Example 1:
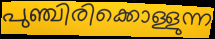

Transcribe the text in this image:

പുഞ്ചിരിക്കൊള്ളുന്ന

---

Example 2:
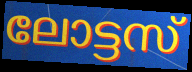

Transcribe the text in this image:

ലോട്ടസ്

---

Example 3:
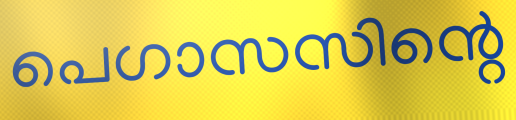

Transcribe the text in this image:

പെഗാസസിന്റെ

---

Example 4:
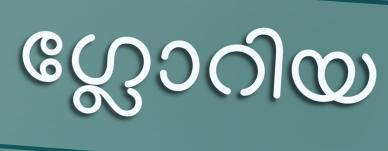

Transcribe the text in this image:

ഗ്ലോറിയ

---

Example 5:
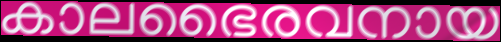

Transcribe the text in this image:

കാലഭൈരവനായ